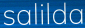
salilda